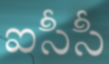
ఐసీసీ